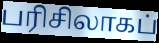
பரிசிலாகப்